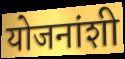
योजनांशी